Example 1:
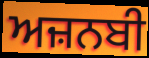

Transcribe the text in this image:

ਅਜ਼ਨਬੀ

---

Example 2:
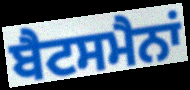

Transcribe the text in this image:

ਬੈਟਸਮੈਨਾਂ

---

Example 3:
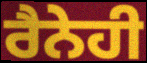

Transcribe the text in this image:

ਰੈਨੇਹੀ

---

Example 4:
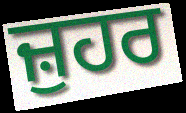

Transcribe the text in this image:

ਜ਼ੁਹਰ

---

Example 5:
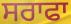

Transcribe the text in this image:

ਸਰਾਫਾ